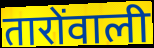
तारोंवाली